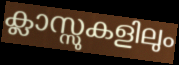
ക്ലാസ്സുകളിലും